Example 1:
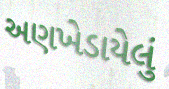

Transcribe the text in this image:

અણખેડાયેલું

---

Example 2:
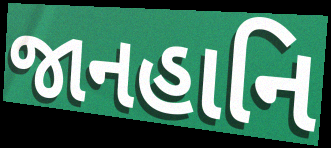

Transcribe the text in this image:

જાનહાનિ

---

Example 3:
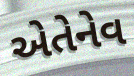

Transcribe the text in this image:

એતેનેવ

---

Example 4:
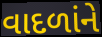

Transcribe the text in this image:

વાદળાંને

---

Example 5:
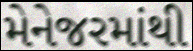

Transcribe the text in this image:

મેનેજરમાંથી